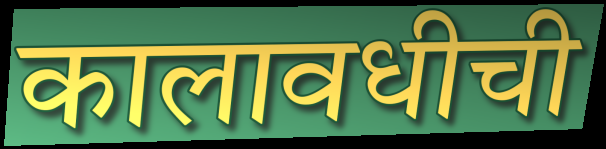
कालावधीची